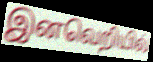
இனவெறியில்